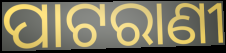
ପାଟରାଣୀ